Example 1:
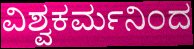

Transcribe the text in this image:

ವಿಶ್ವಕರ್ಮನಿಂದ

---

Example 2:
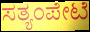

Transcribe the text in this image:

ಸತ್ಯಂಪೇಟೆ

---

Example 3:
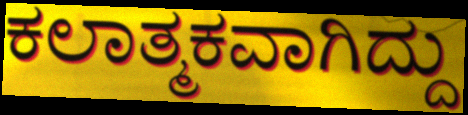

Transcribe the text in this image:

ಕಲಾತ್ಮಕವಾಗಿದ್ದು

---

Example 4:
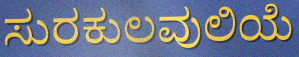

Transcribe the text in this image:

ಸುರಕುಲವುಲಿಯೆ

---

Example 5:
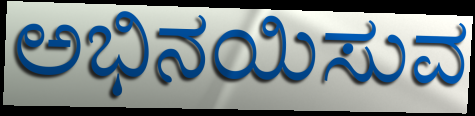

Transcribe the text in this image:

ಅಭಿನಯಿಸುವ